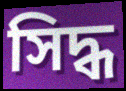
সিদ্ধ